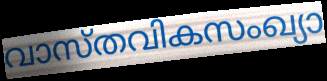
വാസ്തവികസംഖ്യാ